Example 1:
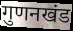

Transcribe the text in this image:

गुणनखंड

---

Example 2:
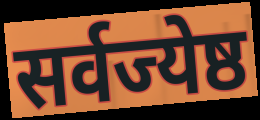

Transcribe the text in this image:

सर्वज्येष्ठ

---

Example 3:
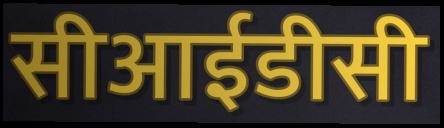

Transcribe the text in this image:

सीआईडीसी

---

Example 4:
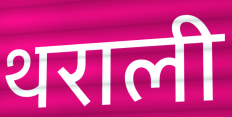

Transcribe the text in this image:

थराली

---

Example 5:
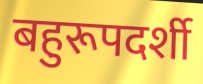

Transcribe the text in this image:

बहुरूपदर्शी